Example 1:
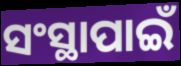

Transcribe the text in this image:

ସଂସ୍ଥାପାଇଁ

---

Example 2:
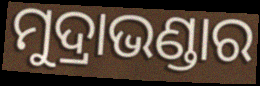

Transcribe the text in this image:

ମୁଦ୍ରାଭଣ୍ଡାର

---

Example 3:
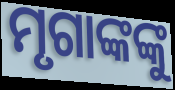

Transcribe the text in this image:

ମୃଗାଙ୍କଙ୍କୁ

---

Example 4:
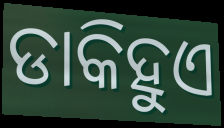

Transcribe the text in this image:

ଡାକିହୁଏ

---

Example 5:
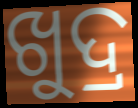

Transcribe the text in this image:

ଖୁଦ୍ର